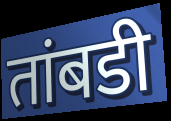
तांबडी